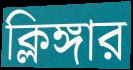
ক্লিঙ্গার